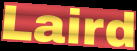
Laird